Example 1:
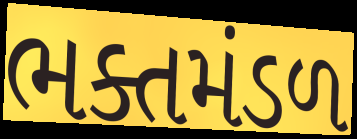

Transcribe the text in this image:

ભક્તમંડળ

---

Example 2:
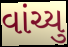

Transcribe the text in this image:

વાંચ્યુ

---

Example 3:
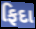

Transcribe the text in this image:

ફિદા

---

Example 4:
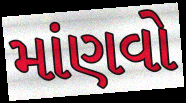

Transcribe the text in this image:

માંણવો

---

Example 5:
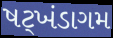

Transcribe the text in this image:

ષટ્ખંડાગમ